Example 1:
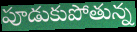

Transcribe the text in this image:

పూడుకుపోతున్న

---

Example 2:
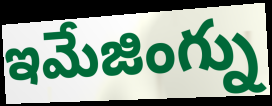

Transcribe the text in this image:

ఇమేజింగ్ను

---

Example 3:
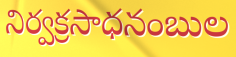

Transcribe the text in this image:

నిర్వక్రసాధనంబుల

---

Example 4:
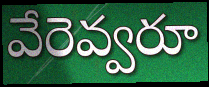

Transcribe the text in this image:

వేరెవ్వరూ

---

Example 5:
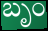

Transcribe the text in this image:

బృం